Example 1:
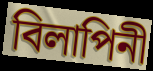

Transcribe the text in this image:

বিলাপিনী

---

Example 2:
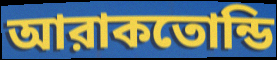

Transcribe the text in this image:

আরাকতোন্ডি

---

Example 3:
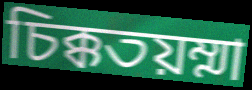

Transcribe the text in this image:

চিক্কতয়ম্মা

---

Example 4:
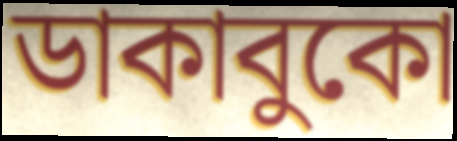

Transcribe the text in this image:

ডাকাবুকো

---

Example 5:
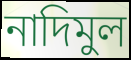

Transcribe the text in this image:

নাদিমুল